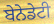
ਬੇਨੇਡੇਟੀ